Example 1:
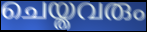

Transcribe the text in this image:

ചെയ്തവരും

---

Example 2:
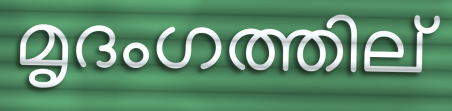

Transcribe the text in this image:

മൃദംഗത്തില്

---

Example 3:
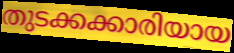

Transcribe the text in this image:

തുടക്കക്കാരിയായ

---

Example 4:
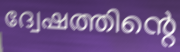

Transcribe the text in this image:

ദ്വേഷത്തിന്റെ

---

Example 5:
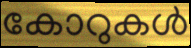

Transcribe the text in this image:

കോറുകൾ